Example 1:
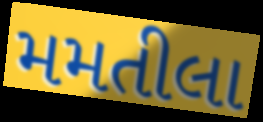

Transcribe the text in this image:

મમતીલા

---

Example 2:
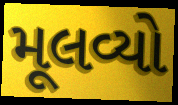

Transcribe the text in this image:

મૂલવ્યો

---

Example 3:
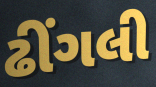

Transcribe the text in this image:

ઢીંગલી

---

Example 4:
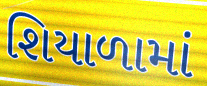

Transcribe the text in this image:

શિયાળામાં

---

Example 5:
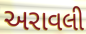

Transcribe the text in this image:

અરાવલી